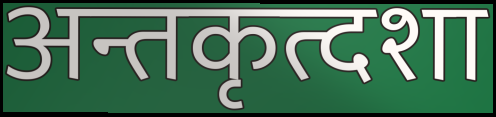
अन्तकृत्दशा